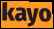
kayo